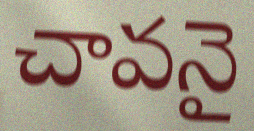
చావనై